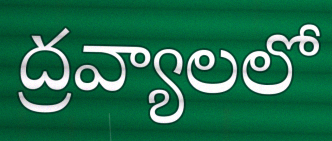
ద్రవ్యాలలో